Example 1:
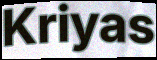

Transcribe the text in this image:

Kriyas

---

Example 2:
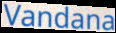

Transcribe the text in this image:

Vandana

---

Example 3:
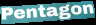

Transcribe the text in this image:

Pentagon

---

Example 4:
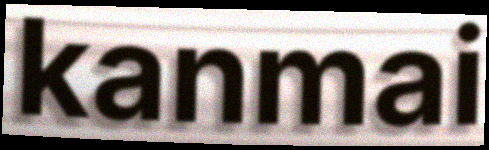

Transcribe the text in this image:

kanmai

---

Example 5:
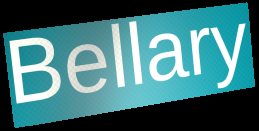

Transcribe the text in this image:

Bellary